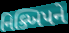
નિક્ખિપને